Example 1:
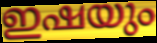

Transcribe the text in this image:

ഇഷയും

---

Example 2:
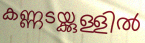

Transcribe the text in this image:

കണ്ണടയ്ക്കുള്ളിൽ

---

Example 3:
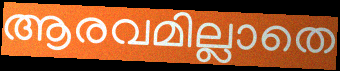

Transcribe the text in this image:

ആരവമില്ലാതെ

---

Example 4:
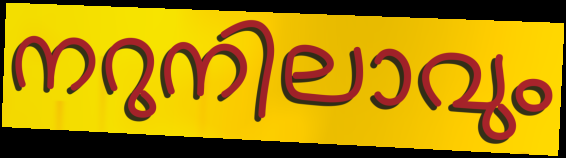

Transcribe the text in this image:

നറുനിലാവും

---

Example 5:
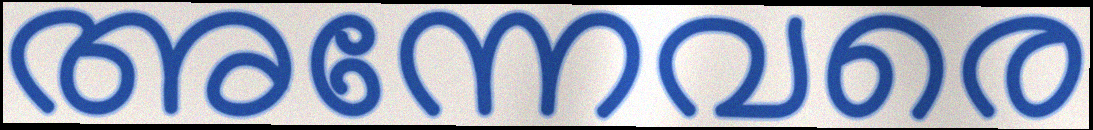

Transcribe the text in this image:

അന്നേവരെ